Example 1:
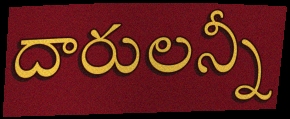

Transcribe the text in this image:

దారులన్నీ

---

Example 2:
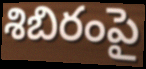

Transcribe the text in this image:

శిబిరంపై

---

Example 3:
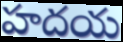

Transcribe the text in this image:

హదయ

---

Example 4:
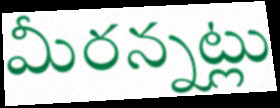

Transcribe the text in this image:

మీరన్నట్లు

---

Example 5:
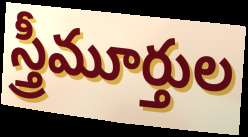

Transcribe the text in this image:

స్త్రీమూర్తుల